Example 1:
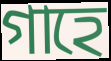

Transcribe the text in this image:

গাহে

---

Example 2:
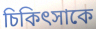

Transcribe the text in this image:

চিকিৎসাকে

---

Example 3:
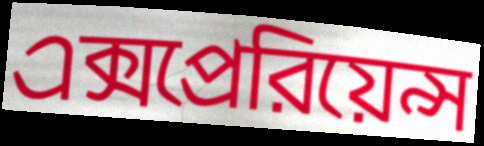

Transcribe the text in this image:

এক্সপ্রেরিয়েন্স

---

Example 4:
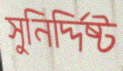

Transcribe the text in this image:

সুনির্দ্দিষ্ট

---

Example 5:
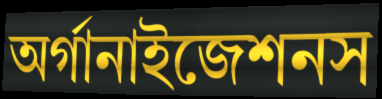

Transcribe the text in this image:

অর্গানাইজেশনস